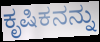
ಕೃಷಿಕನನ್ನು